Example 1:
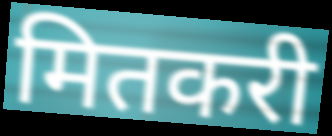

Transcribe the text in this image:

मितकरी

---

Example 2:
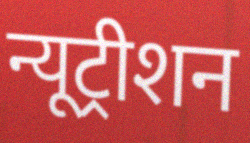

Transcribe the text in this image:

न्यूट्रीशन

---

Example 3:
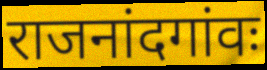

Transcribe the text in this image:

राजनांदगांवः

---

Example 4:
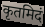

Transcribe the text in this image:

कृतमिदं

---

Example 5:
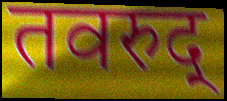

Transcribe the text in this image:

तवरुद्